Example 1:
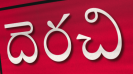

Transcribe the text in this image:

దెరచి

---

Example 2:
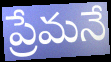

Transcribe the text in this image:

ప్రేమనే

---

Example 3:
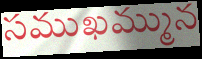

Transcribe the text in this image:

సముఖమ్మున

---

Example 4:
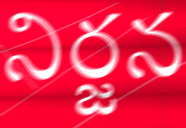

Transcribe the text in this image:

నిర్జన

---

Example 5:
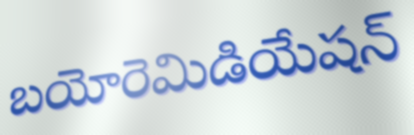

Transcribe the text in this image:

బయోరెమిడియేషన్